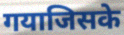
गयाजिसके